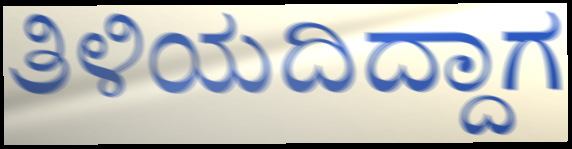
ತಿಳಿಯದಿದ್ದಾಗ